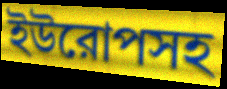
ইউরোপসহ